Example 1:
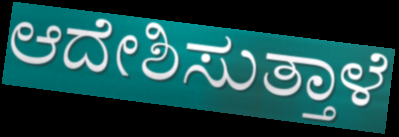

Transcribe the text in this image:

ಆದೇಶಿಸುತ್ತಾಳೆ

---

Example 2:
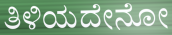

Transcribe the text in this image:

ತಿಳಿಯದೇನೋ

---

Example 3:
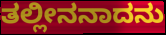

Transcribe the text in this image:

ತಲ್ಲೀನನಾದನು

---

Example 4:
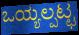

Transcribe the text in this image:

ಒಯ್ಯಲ್ಪಟ್ಟ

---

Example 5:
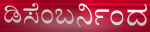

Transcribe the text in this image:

ಡಿಸೆಂಬರ್ನಿಂದ